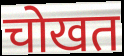
चोखत